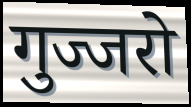
गुज्जरो